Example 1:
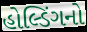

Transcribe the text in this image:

હોલ્ડિંગનો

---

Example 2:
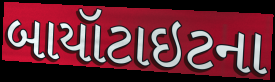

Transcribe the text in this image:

બાયૉટાઇટના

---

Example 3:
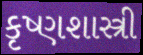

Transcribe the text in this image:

કૃષ્ણશાસ્ત્રી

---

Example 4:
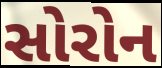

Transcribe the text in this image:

સોરોન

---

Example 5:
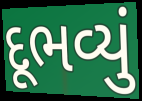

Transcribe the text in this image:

દૂભવ્યું